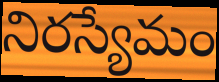
నిరస్యేమం